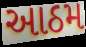
આઠમ